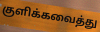
குளிக்கவைத்து